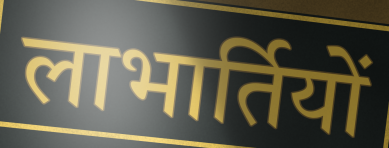
लाभार्तियों